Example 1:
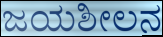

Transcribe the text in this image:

ಜಯಶೀಲನ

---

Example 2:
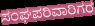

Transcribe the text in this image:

ಸಂಘಪರಿವಾರಿಗರ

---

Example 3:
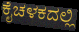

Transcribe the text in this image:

ಕೈಚಳಕದಲ್ಲಿ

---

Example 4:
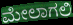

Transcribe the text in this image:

ಮೇಲಾಗಲಿ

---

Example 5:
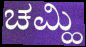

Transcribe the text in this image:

ಚಮ್ಹಿ